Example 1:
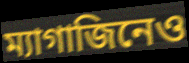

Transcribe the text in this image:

ম্যাগাজিনেও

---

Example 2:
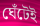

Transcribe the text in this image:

ঘেঁটেই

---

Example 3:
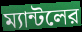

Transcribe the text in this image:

ম্যান্টলের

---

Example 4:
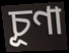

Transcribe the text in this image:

চূণা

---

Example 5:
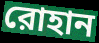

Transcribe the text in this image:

রোহান